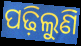
ପଢ଼ିଲୁଣି